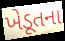
ખેડૂતના